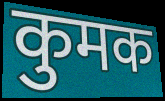
कुमक